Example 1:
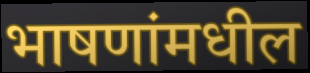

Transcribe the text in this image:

भाषणांमधील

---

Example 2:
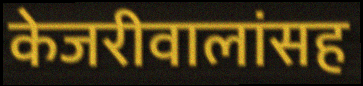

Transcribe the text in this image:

केजरीवालांसह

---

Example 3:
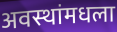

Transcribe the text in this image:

अवस्थांमधला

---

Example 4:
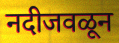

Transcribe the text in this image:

नदीजवळून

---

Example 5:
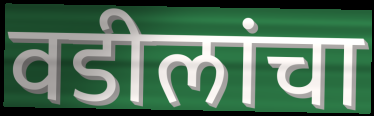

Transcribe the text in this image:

वडीलांचा